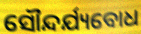
ସୌନ୍ଦର୍ଯ୍ୟବୋଧ